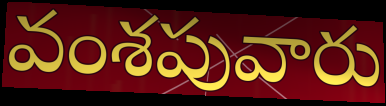
వంశపువారు